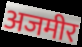
अजमीर